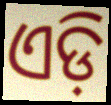
ଏଡ଼ି